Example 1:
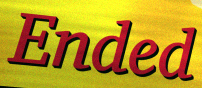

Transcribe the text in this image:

Ended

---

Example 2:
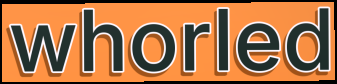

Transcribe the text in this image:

whorled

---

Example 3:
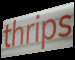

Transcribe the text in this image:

thrips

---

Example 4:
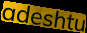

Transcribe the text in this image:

adeshtu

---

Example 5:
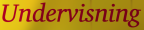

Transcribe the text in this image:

Undervisning